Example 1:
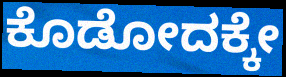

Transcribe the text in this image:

ಕೊಡೋದಕ್ಕೇ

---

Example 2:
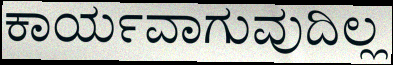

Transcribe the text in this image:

ಕಾರ್ಯವಾಗುವುದಿಲ್ಲ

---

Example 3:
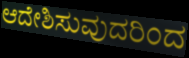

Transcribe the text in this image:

ಆದೇಶಿಸುವುದರಿಂದ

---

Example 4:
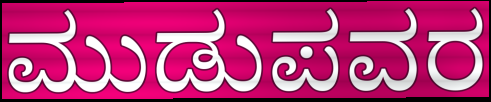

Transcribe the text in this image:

ಮುಡುಪವರ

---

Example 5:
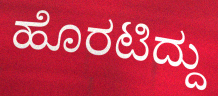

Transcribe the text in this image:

ಹೊರಟಿದ್ದು